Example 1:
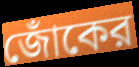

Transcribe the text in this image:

জোঁকের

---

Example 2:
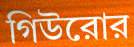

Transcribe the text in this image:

গিউরোর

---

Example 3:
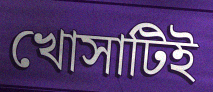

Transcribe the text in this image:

খোসাটিই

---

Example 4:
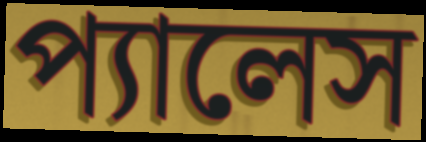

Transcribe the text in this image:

প্যালেস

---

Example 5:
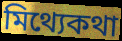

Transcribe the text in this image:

মিথ্যেকথা